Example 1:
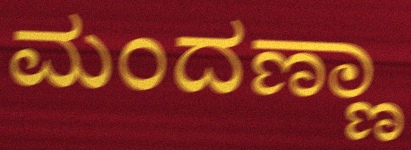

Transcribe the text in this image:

ಮಂದಣ್ಣಾ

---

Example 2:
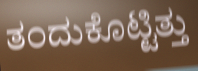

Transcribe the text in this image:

ತಂದುಕೊಟ್ಟಿತ್ತು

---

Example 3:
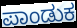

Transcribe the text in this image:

ಪಾಂಡುಕ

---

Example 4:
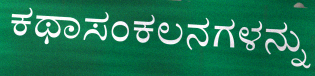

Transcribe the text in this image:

ಕಥಾಸಂಕಲನಗಳನ್ನು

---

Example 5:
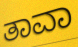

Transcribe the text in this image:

ತಾವಾ